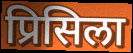
प्रिसिला